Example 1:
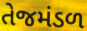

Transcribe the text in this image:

તેજમંડળ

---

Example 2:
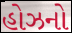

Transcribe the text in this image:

હોઝનો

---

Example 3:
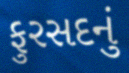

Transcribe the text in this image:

ફુરસદનું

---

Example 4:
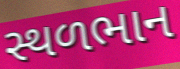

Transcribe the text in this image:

સ્થળભાન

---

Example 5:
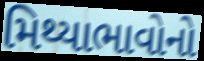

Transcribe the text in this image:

મિથ્યાભાવોનો